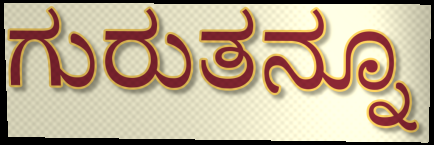
ಗುರುತನ್ನೂ